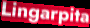
Lingarpita